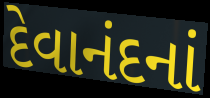
દેવાનંદનાં